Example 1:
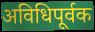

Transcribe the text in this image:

अविधिपूर्वक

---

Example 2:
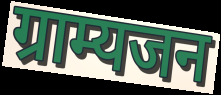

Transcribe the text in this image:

ग्राम्यजन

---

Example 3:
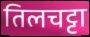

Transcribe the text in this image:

तिलचट्टा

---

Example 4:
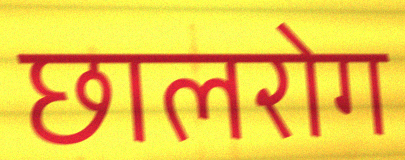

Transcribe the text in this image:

छालरोग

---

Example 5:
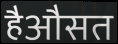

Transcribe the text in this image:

हैऔसत